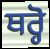
ਥਰ੍ਹੋ